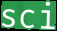
sci